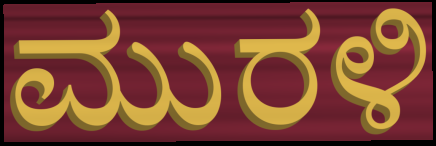
ಮುರಳಿ